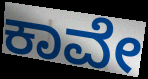
ಕಾವೇ